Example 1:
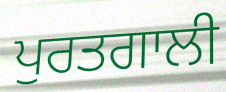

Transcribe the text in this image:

ਪੁਰਤਗਾਲੀ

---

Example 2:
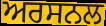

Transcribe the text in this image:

ਅਰਸਨਲ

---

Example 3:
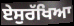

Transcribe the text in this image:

ਏਸੁਰੱਖਿਆ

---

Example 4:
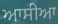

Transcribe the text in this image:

ਆਸੀਆ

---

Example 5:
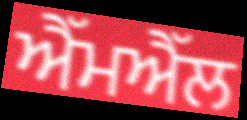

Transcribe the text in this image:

ਐੱਮਐੱਲ